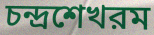
চন্দ্রশেখরম